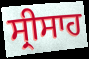
ਸ੍ਰੀਸਾਹ